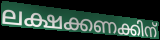
ലക്ഷക്കണക്കിന്